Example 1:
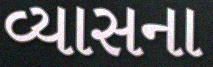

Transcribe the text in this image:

વ્યાસના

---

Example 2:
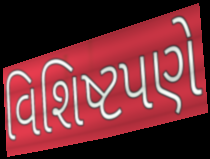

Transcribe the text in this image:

વિશિષ્ટપણે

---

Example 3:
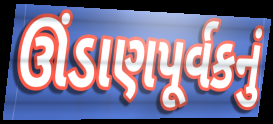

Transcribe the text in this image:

ઊંડાણપૂર્વકનું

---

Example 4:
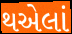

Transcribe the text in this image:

થએલાં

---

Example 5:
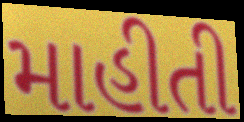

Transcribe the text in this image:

માહીતી